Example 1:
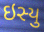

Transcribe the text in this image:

ઇસ્યુ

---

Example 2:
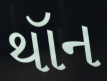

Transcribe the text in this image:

થૉન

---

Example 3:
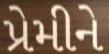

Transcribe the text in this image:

પ્રેમીને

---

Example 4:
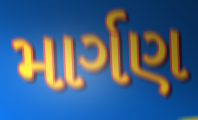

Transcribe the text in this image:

માર્ગણ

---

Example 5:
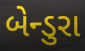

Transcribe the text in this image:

બેન્ડુરા